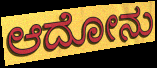
ಆದೋನು